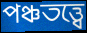
পঞ্চতত্ত্বে